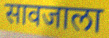
सावजाला